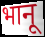
भानू